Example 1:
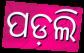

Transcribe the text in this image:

ପଡ଼ଲି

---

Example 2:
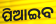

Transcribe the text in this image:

ପିଆଇବ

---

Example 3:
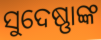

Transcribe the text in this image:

ସୁଦେଷ୍ଣାଙ୍କ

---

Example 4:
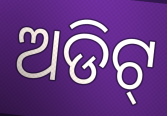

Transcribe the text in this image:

ଅଡିଟ୍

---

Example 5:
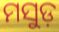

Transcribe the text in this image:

ମସୁଡ଼